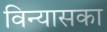
विन्यासका